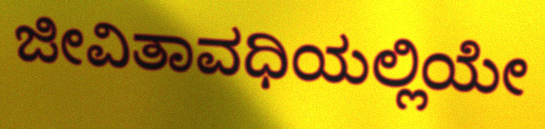
ಜೀವಿತಾವಧಿಯಲ್ಲಿಯೇ